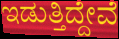
ಇಡುತ್ತಿದ್ದೇವೆ